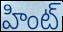
హింట్